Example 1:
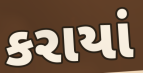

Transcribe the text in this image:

કરાયાં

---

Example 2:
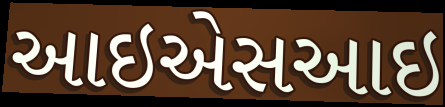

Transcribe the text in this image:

આઇએસઆઇ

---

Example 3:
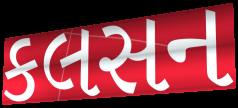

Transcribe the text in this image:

કલસન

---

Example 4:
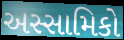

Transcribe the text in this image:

અસ્સામિકો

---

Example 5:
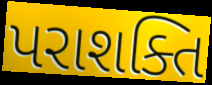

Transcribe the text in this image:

પરાશક્તિ